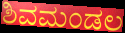
ಶಿವಮಂಡಲ